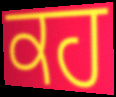
ਕਹ